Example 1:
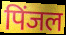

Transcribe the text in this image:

पिंजल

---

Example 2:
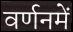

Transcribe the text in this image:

वर्णनमें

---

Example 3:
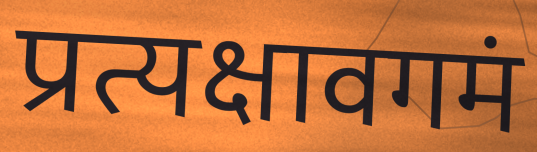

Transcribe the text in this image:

प्रत्यक्षावगमं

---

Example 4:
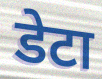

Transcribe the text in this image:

डेटा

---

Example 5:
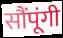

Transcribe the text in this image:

सौंपूंगी